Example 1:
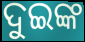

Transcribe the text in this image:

ଦୁଇଙ୍କ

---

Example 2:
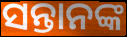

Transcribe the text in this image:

ସନ୍ତାନଙ୍କ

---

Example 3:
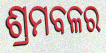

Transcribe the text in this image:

ଶ୍ରମବଳର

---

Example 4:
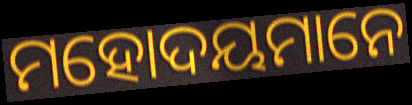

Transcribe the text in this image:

ମହୋଦୟମାନେ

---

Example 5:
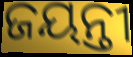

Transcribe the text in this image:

ଜୟନ୍ତୀ